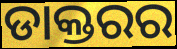
ଡାକ୍ତରର